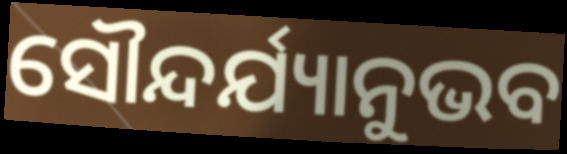
ସୌନ୍ଦର୍ଯ୍ୟାନୁଭବ